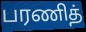
பரணித்